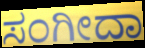
ಸಂಗೀದಾ